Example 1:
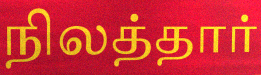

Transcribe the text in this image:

நிலத்தார்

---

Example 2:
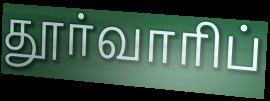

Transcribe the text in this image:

தூர்வாரிப்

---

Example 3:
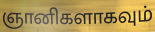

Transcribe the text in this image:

ஞானிகளாகவும்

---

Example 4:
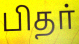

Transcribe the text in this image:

பிதர்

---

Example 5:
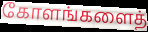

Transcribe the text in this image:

கோளங்களைத்